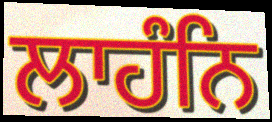
ਲਾਹੰਨਿ